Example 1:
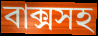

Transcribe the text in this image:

বাক্সসহ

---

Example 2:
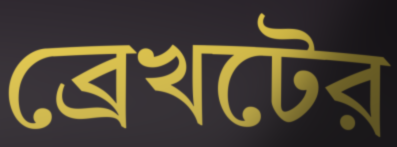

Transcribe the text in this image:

ব্রেখটের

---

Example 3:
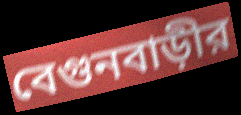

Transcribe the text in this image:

বেগুনবাড়ীর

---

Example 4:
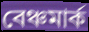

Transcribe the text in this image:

বেঞ্চমার্ক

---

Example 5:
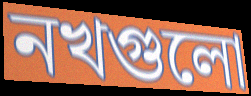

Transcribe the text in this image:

নখগুলো